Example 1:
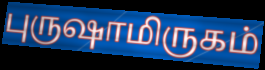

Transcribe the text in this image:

புருஷாமிருகம்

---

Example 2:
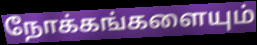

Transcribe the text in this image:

நோக்கங்களையும்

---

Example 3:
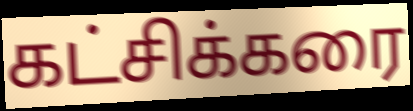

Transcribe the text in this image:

கட்சிக்கரை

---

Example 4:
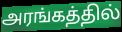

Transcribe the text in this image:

அரங்கத்தில்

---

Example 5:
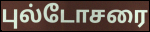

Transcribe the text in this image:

புல்டோசரை